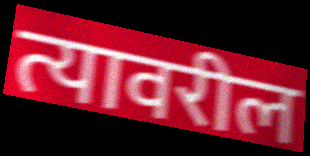
त्यावरील